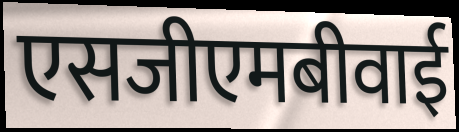
एसजीएमबीवाई